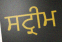
ਸਟ੍ਰੀਮ